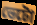
ভেটো